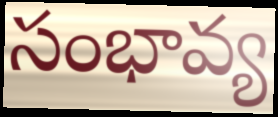
సంభావ్య